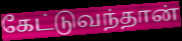
கேட்டுவந்தான்